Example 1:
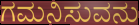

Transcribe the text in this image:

ಗಮನಿಸುವನು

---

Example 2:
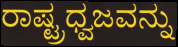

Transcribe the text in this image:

ರಾಷ್ಟ್ರಧ್ವಜವನ್ನು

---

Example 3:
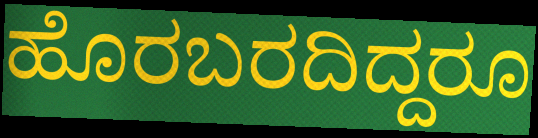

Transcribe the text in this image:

ಹೊರಬರದಿದ್ದರೂ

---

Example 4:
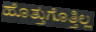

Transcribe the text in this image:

ಹೊತ್ತುಗೊತ್ತಿಲ್ಲ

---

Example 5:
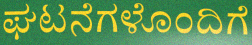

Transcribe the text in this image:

ಘಟನೆಗಳೊಂದಿಗೆ